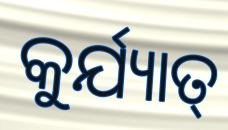
କୁର୍ଯ୍ୟାତ୍